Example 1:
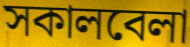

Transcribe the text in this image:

সকালবেলা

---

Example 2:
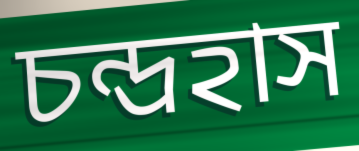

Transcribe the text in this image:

চন্দ্রহাস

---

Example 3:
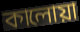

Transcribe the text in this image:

কালোয়া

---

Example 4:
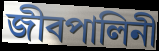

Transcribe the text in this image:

জীবপালিনী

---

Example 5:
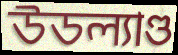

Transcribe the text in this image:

উডল্যাণ্ড